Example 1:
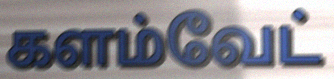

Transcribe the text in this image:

களம்வேட்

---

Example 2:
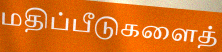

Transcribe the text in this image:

மதிப்பீடுகளைத்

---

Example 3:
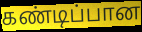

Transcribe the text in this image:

கண்டிப்பான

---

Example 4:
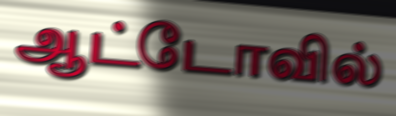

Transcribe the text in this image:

ஆட்டோவில்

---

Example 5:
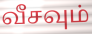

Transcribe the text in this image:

வீசவும்